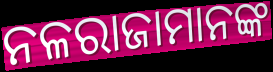
ନଳରାଜାମାନଙ୍କ